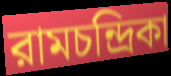
রামচন্দ্রিকা